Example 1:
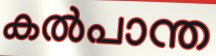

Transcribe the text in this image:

കൽപാന്ത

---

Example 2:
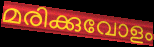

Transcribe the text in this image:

മരിക്കുവോളം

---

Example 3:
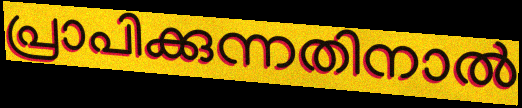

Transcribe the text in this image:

പ്രാപിക്കുന്നതിനാൽ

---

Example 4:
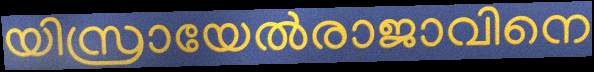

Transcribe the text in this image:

യിസ്രായേൽരാജാവിനെ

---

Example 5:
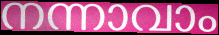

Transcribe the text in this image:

നന്നാവാം